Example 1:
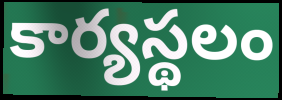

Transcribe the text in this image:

కార్యస్థలం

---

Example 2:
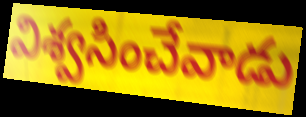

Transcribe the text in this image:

విశ్వసించేవాడు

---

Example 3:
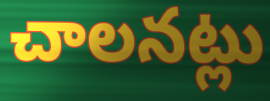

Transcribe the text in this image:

చాలనట్లు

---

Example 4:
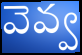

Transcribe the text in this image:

వెవ్వ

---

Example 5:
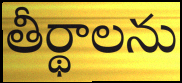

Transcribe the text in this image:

తీర్థాలను